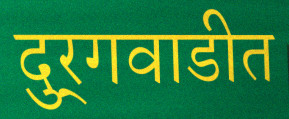
दुर्गवाडीत